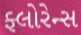
ફ્લોરેન્સ